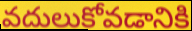
వదులుకోవడానికి